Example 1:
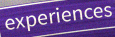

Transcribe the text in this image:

experiences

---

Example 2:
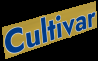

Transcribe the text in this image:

Cultivar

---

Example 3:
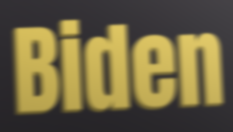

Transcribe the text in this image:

Biden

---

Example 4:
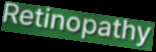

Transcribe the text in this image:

Retinopathy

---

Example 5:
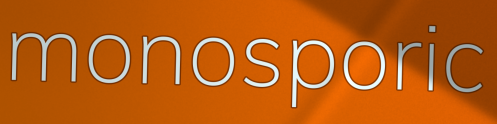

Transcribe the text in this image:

monosporic